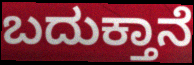
ಬದುಕ್ತಾನೆ